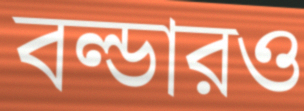
বল্ডারও